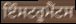
ਇੰਸਟਰੂਮੈਂਟਸ